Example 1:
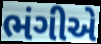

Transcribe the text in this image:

ભંગીએ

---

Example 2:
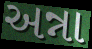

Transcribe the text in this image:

અન્ના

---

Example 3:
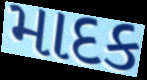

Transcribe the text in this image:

માદક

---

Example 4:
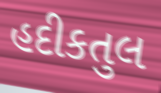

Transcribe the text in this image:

હદીકતુલ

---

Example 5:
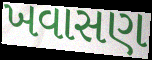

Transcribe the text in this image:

ખવાસણ